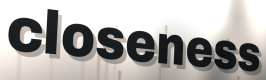
closeness